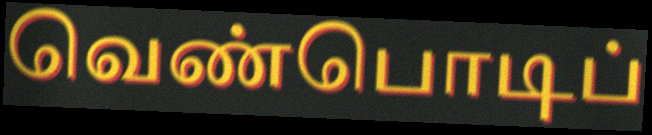
வெண்பொடிப்